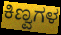
ಕಿಣ್ವಗಳ